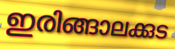
ഇരിങ്ങാലക്കുട